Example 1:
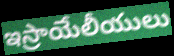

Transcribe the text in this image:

ఇస్రాయేలీయులు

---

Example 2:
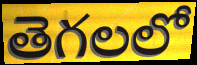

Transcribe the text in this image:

తెగలలో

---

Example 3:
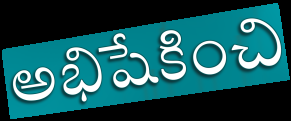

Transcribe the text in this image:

అభిషేకించి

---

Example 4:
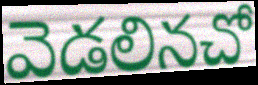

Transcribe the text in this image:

వెడలినచో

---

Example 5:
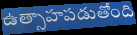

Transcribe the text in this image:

ఉత్సాహపడుతోంది